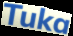
Tuka